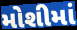
મોશીમાં